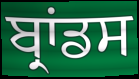
ਬ੍ਰਾਂਡਸ